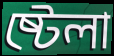
ষ্টেলা